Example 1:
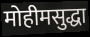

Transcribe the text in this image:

मोहीमसुद्धा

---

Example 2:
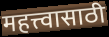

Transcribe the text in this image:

महत्त्वासाठी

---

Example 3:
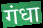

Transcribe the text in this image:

गंधा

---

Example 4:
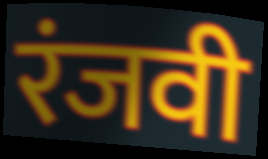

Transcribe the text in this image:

रंजवी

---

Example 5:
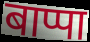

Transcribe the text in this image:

बाप्पा